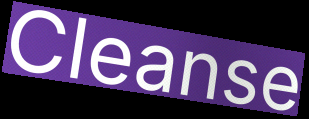
Cleanse